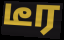
டீர